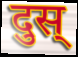
दुस्